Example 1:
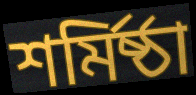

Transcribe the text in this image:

শৰ্মিষ্ঠা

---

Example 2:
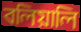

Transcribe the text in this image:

বলিয়ালি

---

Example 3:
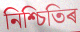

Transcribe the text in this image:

নিশ্চিতিৰ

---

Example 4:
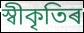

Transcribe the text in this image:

স্বীকৃতিৰ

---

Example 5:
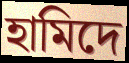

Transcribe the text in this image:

হামিদে